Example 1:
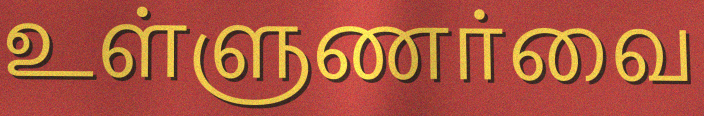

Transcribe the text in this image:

உள்ளுணர்வை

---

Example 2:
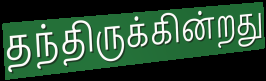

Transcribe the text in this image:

தந்திருக்கின்றது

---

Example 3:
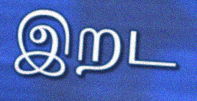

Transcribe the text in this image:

இறட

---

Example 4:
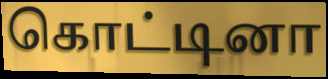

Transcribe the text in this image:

கொட்டினா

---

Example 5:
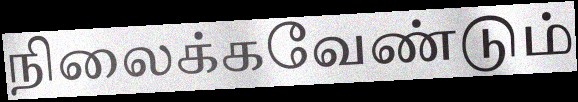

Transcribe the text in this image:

நிலைக்கவேண்டும்